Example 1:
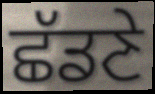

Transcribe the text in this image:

ਛੱਡਣੇ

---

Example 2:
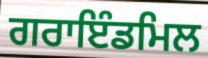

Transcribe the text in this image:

ਗਰਾਇੰਡਮਿਲ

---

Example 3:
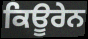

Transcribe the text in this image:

ਕਿਊਰੇਨ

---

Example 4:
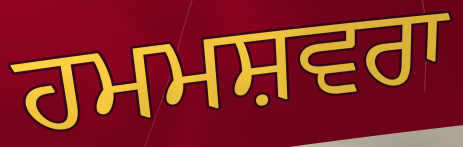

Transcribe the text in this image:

ਹਮਮਸ਼ਵਰਾ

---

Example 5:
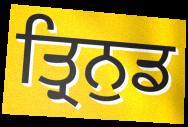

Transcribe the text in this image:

ਤ੍ਰਿਨੁਡ